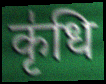
कृ॑धि